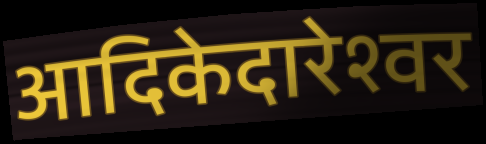
आदिकेदारेश्वर